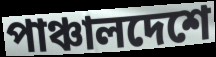
পাঞ্চালদেশে